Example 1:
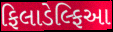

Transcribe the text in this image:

ફિલાડેલ્ફિઆ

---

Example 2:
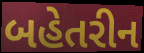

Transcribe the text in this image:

બહેતરીન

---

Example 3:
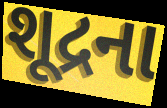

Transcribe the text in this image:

શૂદ્રના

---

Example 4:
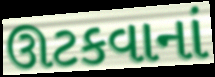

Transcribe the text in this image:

ઊટકવાનાં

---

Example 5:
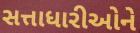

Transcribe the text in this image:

સત્તાધારીઓને